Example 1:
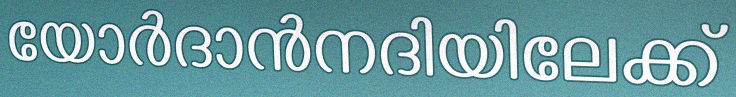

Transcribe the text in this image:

യോർദാൻനദിയിലേക്ക്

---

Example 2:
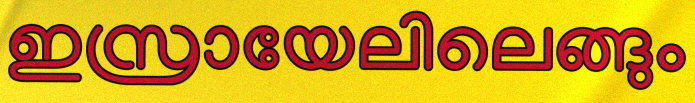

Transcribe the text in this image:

ഇസ്രായേലിലെങ്ങും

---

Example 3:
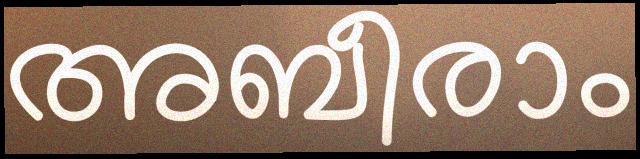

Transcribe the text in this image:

അബീരാം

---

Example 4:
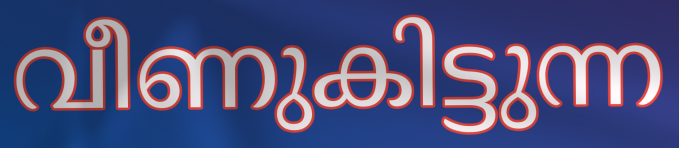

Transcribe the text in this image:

വീണുകിട്ടുന്ന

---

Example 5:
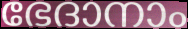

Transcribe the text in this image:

ഭേദാനാം